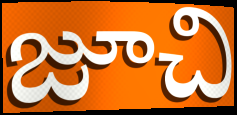
జూచి